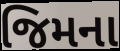
જિમના